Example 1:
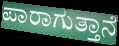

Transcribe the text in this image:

ಪಾರಾಗುತ್ತಾನೆ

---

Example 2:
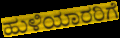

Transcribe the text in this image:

ಹುಳಿಯಾರರಿಗೆ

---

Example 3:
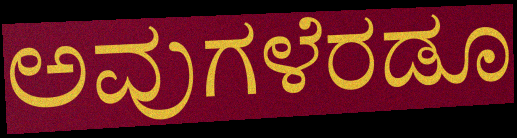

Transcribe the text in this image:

ಅವುಗಳೆರಡೂ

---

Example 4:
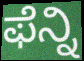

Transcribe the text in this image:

ಫೆನ್ನಿ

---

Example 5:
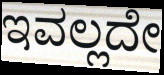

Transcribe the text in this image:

ಇವಲ್ಲದೇ